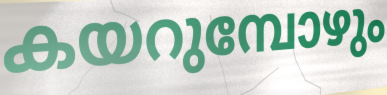
കയറുമ്പോഴും